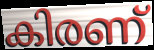
കിരണ്